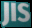
JIS